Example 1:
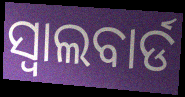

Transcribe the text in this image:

ସ୍ୱାଲବାର୍ଡ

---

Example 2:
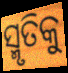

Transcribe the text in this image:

ସ୍ମୃତିକୁ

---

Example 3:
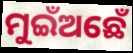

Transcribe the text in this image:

ମୁଇଁଅଛେଁ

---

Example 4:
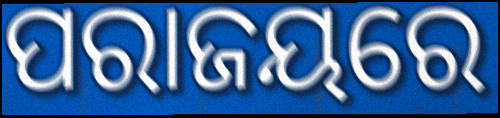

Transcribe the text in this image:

ପରାଜୟରେ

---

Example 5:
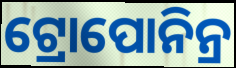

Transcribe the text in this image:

ଟ୍ରୋପୋନିନ୍ର